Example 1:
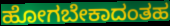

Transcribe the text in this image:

ಹೋಗಬೇಕಾದಂತಹ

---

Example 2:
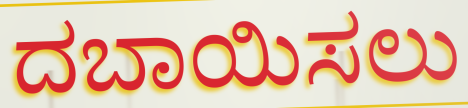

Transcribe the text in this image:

ದಬಾಯಿಸಲು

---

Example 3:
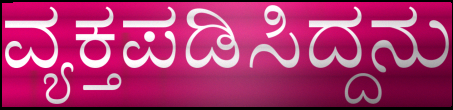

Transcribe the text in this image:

ವ್ಯಕ್ತಪಡಿಸಿದ್ದನು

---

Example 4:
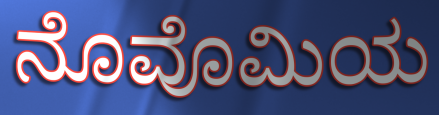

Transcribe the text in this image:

ನೊವೊಮಿಯ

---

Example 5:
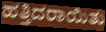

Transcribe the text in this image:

ಹತ್ತಿದರಾಯಿತು